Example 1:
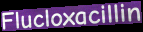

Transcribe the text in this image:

Flucloxacillin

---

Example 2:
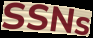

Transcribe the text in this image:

SSNs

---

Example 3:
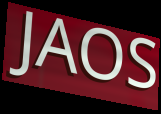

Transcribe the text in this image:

JAOS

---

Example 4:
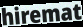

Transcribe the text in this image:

hiremat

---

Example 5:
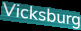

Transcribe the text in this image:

Vicksburg